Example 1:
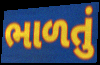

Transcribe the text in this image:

ભાળતું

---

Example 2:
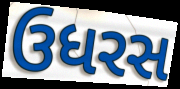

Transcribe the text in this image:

ઉધરસ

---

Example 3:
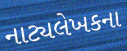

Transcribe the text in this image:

નાટ્યલેખકના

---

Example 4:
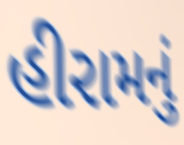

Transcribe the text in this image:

હીરામનું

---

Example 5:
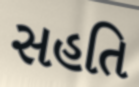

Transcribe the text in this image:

સહતિ